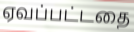
ஏவப்பட்டதை